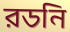
রডনি